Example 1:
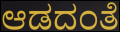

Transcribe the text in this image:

ಆಡದಂತೆ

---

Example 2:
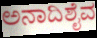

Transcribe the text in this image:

ಅನಾದಿಶೈವ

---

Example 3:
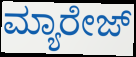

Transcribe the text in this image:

ಮ್ಯಾರೇಜ್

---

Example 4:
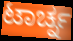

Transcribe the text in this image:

ಟಾರ್ಚ್ನ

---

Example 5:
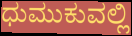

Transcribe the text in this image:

ಧುಮುಕುವಲ್ಲಿ